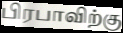
பிரபாவிற்கு